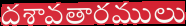
దశావతారములు